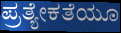
ಪ್ರತ್ಯೇಕತೆಯೂ